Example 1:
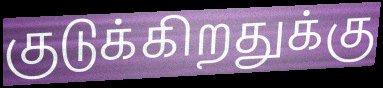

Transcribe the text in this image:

குடுக்கிறதுக்கு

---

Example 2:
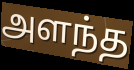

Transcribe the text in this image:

அளந்த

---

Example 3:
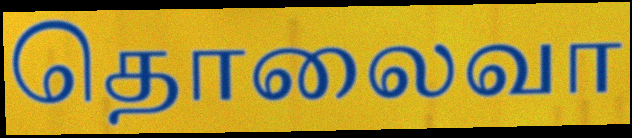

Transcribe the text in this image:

தொலைவா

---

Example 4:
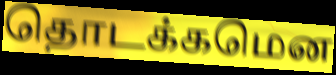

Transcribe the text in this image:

தொடக்கமென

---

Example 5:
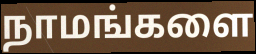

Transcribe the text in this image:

நாமங்களை